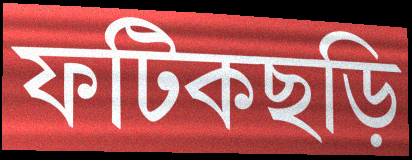
ফটিকছড়ি